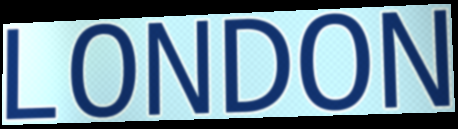
LONDON